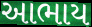
આભાય